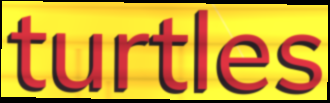
turtles